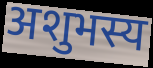
अशुभस्य